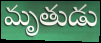
మృతుడు